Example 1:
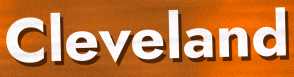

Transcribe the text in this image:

Cleveland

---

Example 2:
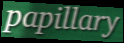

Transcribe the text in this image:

papillary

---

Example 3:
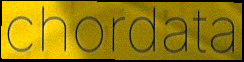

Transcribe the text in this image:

chordata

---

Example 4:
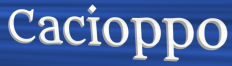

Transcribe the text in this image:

Cacioppo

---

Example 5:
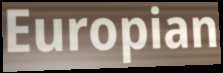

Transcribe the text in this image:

Europian